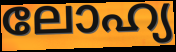
ലോഹ്യ